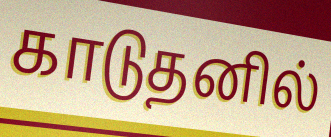
காடுதனில்